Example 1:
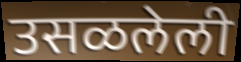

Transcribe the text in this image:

उसळलेली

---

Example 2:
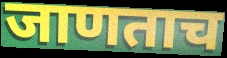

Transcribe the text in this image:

जाणताच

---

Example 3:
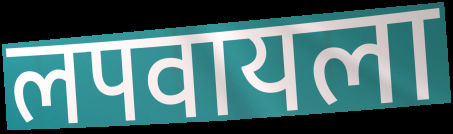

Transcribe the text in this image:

लपवायला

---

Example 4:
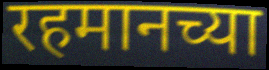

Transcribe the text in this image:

रहमानच्या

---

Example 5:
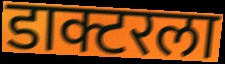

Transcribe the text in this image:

डाक्टरला